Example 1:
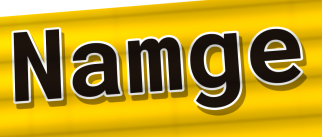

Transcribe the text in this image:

Namge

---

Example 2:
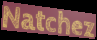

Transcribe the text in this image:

Natchez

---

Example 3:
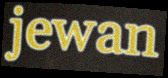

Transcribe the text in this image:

jewan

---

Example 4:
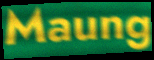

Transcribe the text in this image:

Maung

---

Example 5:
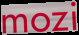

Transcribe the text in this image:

mozi